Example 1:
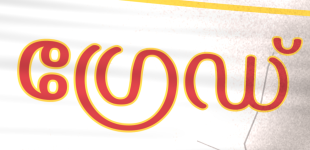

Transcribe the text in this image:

ഗ്രേഡ്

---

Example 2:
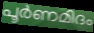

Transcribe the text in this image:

പൂർണമിദം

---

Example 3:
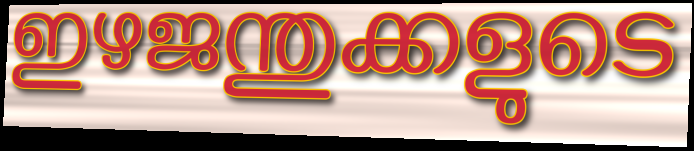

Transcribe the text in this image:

ഇഴജന്തുക്കളുടെ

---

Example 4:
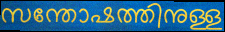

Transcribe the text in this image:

സന്തോഷത്തിനുള്ള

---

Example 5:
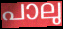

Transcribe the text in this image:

പാലു